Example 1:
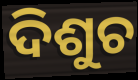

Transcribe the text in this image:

ଦିଶୁଚ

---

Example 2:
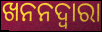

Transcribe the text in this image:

ଖନନଦ୍ୱାରା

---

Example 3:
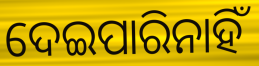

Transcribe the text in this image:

ଦେଇପାରିନାହିଁ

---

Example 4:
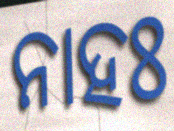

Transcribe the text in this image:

ନାହଃ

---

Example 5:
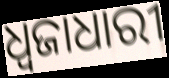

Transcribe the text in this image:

ଧ୍ବଜାଧାରୀ